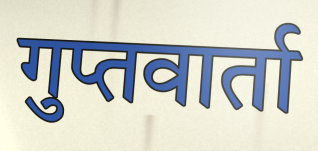
गुप्तवार्ता